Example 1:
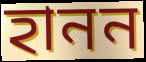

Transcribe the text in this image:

হানন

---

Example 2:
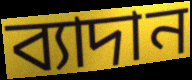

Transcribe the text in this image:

ব্যাদান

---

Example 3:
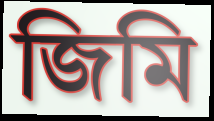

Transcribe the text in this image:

জিমি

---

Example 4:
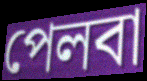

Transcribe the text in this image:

পেলবা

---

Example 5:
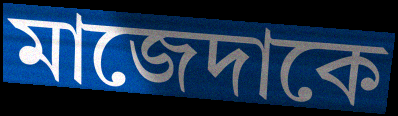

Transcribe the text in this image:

মাজেদাকে